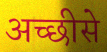
अच्छीसे